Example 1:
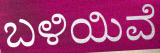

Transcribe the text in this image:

ಬಳಿಯಿವೆ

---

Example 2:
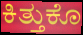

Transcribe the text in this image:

ಕಿತ್ತುಕೊ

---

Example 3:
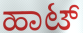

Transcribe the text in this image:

ಹಾಟ್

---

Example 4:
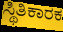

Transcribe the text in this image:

ಸ್ಥಿತಿಕಾರಕ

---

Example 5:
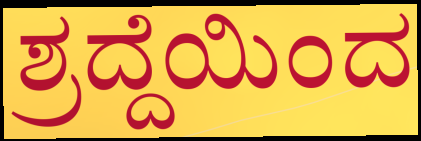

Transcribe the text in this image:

ಶ್ರದ್ದೆಯಿಂದ